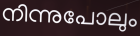
നിന്നുപോലും